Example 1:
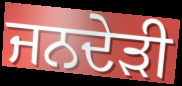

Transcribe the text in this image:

ਜਨਦੇੜੀ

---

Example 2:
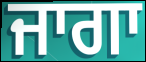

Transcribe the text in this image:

ਜਾਗਾ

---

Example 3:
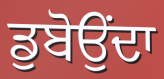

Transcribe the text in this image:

ਡੁਬੋਉਂਦਾ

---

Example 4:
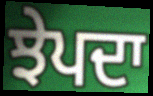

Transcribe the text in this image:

ਝੇਪਦਾ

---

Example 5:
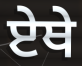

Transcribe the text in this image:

ਏਥੇ